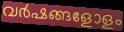
വർഷങ്ങളോളം